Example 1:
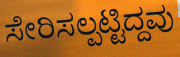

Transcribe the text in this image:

ಸೇರಿಸಲ್ಪಟ್ಟಿದ್ದವು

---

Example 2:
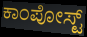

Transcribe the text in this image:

ಕಾಂಪೋಸ್ಟ್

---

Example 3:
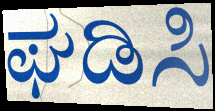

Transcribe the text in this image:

ಘಡಿಸಿ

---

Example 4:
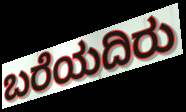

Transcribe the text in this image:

ಬರೆಯದಿರು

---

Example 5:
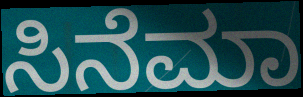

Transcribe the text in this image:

ಸಿನೆಮಾ